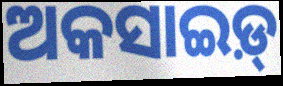
ଅକସାଇଡ଼୍